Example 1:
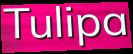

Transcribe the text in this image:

Tulipa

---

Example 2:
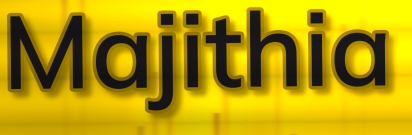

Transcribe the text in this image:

Majithia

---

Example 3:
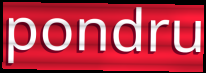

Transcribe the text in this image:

pondru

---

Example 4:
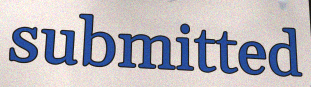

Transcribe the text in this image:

submitted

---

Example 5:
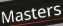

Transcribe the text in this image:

Masters